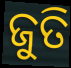
ଜୁତି